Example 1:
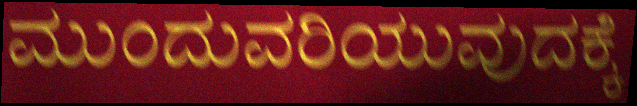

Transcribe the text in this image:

ಮುಂದುವರಿಯುವುದಕ್ಕೆ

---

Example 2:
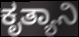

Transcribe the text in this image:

ಕೃತ್ಯಾನಿ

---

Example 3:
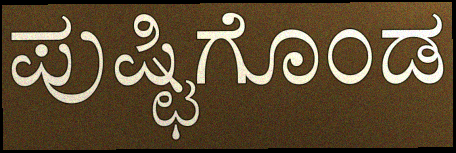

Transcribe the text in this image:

ಪುಷ್ಟಿಗೊಂಡ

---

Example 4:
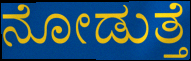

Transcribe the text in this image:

ನೋಡುತ್ತೆ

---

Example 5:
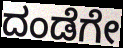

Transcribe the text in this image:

ದಂಡೆಗೇ